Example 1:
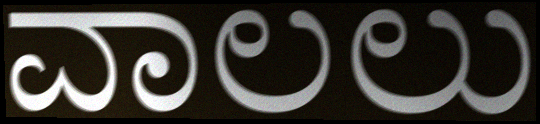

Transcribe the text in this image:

ವಾಲಲು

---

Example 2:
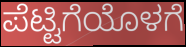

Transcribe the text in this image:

ಪೆಟ್ಟಿಗೆಯೊಳಗೆ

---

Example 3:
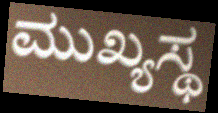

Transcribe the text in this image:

ಮುಖ್ಯಸ್ಥ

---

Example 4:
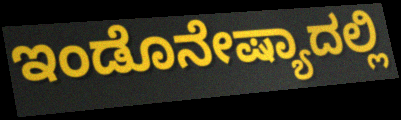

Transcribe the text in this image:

ಇಂಡೊನೇಷ್ಯಾದಲ್ಲಿ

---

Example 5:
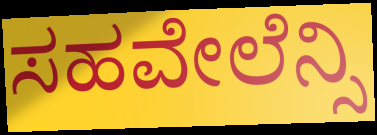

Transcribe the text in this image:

ಸಹವೇಲೆನ್ಸಿ